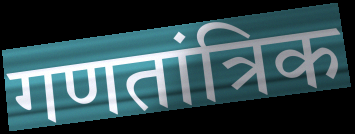
गणतांत्रिक